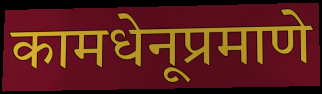
कामधेनूप्रमाणे